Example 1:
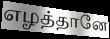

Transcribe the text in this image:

எழத்தானே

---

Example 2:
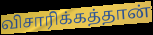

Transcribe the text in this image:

விசாரிக்கத்தான்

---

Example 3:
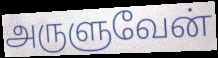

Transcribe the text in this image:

அருளுவேன்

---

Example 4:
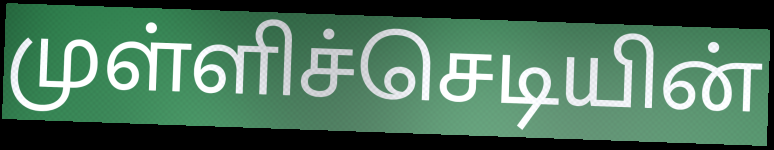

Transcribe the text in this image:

முள்ளிச்செடியின்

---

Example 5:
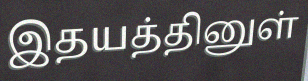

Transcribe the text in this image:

இதயத்தினுள்